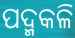
ପଦ୍ମକଳି